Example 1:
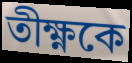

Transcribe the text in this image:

তীক্ষ্ণকে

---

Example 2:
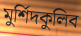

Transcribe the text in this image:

মুর্শিদকুলিব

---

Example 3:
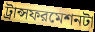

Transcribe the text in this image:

ট্রান্সফরমেশনটা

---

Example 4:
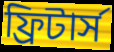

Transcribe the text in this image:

ফ্রিটার্স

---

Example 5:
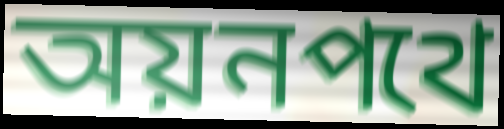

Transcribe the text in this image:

অয়নপথে